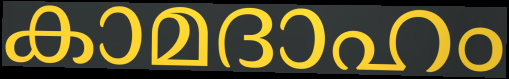
കാമദാഹം